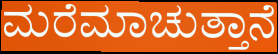
ಮರೆಮಾಚುತ್ತಾನೆ